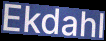
Ekdahl